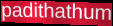
padithathum